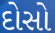
દોસો